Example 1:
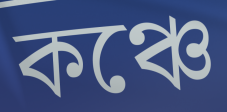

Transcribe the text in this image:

কঞ্চে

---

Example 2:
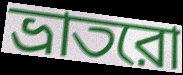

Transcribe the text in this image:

ভ্রাতরো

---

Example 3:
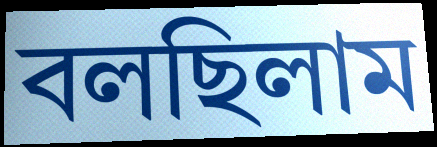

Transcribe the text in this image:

বলছিলাম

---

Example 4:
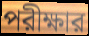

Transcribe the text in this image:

পরীক্ষার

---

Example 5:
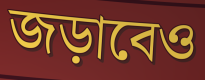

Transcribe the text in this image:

জড়াবেও